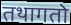
तथागतो